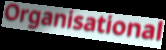
Organisational